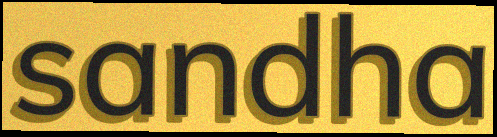
sandha